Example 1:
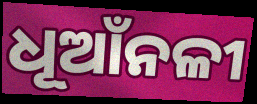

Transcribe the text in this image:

ଧୂଆଁନଳୀ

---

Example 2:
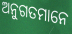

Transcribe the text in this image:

ଅନୁଗତମାନେ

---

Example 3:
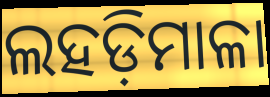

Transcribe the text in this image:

ଲହଡ଼ିମାଳା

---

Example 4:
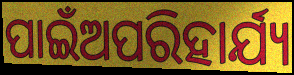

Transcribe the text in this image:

ପାଇଁଅପରିହାର୍ଯ୍ୟ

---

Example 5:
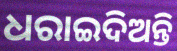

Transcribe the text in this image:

ଧରାଇଦିଅନ୍ତି